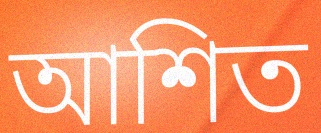
আশিত